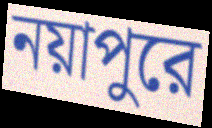
নয়াপুরে